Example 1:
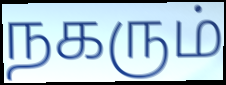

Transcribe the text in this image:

நகரும்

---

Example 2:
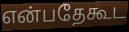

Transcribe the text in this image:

என்பதேகூட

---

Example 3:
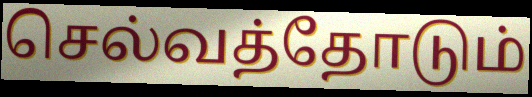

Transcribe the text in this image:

செல்வத்தோடும்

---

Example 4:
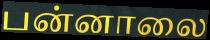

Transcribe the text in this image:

பன்னாலை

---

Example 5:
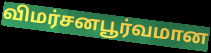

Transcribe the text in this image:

விமர்சனபூர்வமான